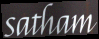
satham